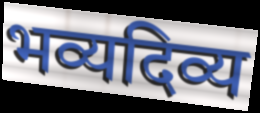
भव्यदिव्य